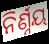
ନିର୍ଣ୍ନୟ